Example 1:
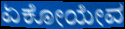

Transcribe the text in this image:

ಏಕೋಯೇವ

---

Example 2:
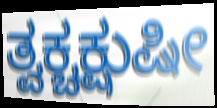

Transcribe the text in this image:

ತ್ವಕ್ಚಕ್ಷುಷೀ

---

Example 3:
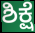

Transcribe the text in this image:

ಶಿಕ್ಷೆ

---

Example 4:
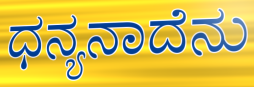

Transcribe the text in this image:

ಧನ್ಯನಾದೆನು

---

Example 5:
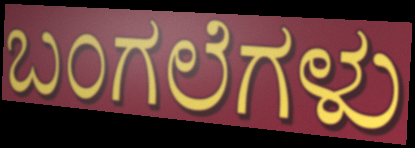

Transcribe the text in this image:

ಬಂಗಲೆಗಳು